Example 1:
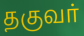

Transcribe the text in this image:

தகுவர்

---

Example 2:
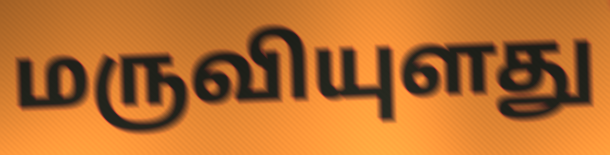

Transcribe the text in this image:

மருவியுளது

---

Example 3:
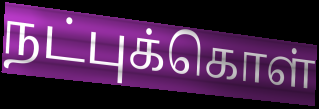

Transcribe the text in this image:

நட்புக்கொள்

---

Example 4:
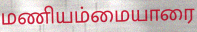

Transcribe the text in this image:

மணியம்மையாரை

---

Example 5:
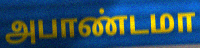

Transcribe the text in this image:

அபாண்டமா